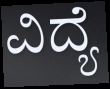
ವಿದ್ಯೆ